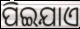
ପିଇଯାଏ